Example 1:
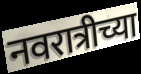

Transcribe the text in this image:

नवरात्रीच्या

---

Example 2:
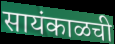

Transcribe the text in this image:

सायंकाळची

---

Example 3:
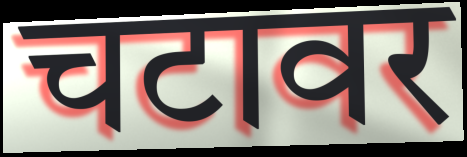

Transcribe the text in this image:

चटावर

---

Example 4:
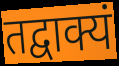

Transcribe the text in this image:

तद्वाक्यं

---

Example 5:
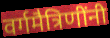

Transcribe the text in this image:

वर्गमैत्रिणींनी